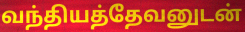
வந்தியத்தேவனுடன்